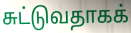
சுட்டுவதாகக்